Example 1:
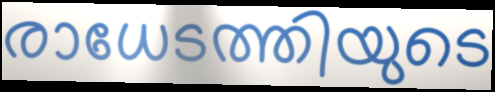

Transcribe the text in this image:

രാധേടത്തിയുടെ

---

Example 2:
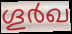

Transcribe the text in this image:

ഗൂർഖ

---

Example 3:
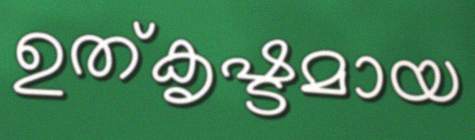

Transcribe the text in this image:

ഉത്കൃഷ്ടമായ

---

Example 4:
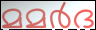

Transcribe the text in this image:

മമർദ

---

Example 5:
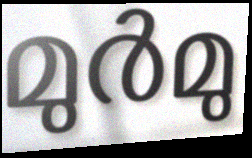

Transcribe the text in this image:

മുർമു